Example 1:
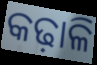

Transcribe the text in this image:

କଢ଼ାଳି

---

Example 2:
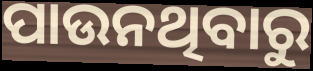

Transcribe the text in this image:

ପାଉନଥିବାରୁ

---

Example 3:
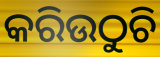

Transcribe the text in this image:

କରିଉଠୁଚି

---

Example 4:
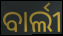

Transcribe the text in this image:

ବାର୍ଲୀ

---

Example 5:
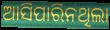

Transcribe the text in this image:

ଆସିପାରିନଥିଲା